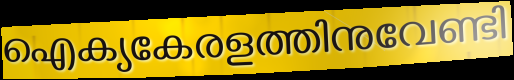
ഐക്യകേരളത്തിനുവേണ്ടി